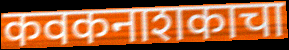
कवकनाशकाचा